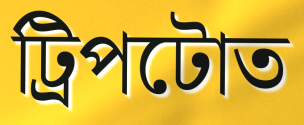
ট্ৰিপটোত